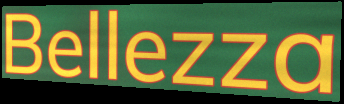
Bellezza